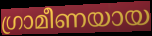
ഗ്രാമീണയായ